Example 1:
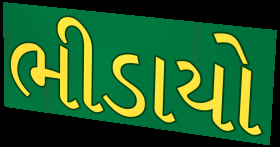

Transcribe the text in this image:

ભીડાયો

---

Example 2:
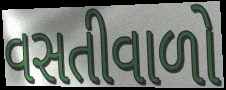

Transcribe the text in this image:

વસતીવાળો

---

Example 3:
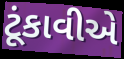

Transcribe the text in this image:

ટૂંકાવીએ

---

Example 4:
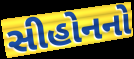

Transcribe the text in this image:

સીહોનનો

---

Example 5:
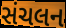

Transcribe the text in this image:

સંચલન